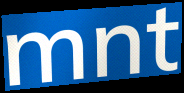
mnt